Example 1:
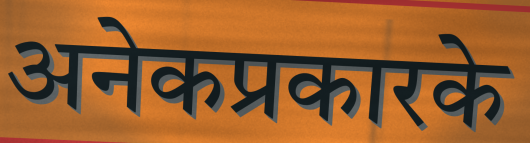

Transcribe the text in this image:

अनेकप्रकारके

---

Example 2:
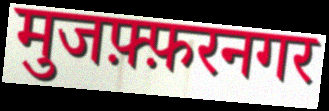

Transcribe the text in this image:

मुजफ़्फ़रनगर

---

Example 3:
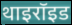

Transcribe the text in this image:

थाइरॉइड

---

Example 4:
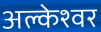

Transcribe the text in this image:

अल्केश्वर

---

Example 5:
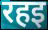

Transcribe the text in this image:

रहइ